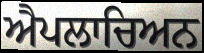
ਐਪਲਾਚਿਅਨ